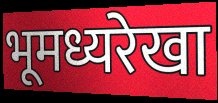
भूमध्यरेखा